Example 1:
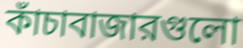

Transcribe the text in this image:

কাঁচাবাজারগুলো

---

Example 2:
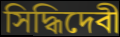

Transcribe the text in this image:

সিদ্ধিদেবী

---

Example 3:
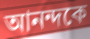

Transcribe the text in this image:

আনন্দকে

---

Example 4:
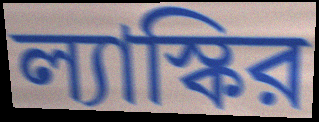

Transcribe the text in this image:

ল্যাস্কির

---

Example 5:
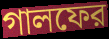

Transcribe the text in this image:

গালফের